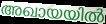
അഖായയിൽ